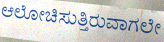
ಆಲೋಚಿಸುತ್ತಿರುವಾಗಲೇ